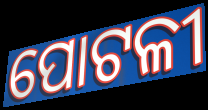
ପୋଟଳୀ